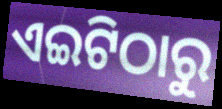
ଏଇଟିଠାରୁ